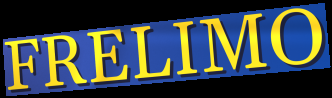
FRELIMO